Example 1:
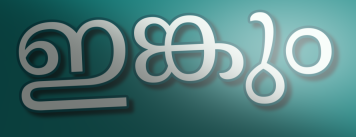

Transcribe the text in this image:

ഇങ്കും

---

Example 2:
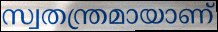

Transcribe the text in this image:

സ്വതന്ത്രമായാണ്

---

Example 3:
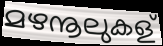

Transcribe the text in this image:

മഴനൂലുകള്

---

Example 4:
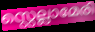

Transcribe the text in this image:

സ്റ്റെല്ലാമേരി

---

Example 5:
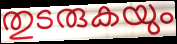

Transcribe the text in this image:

തുടരുകയും